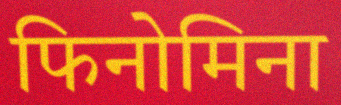
फिनोमिना